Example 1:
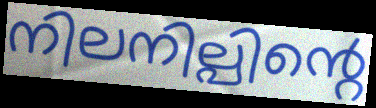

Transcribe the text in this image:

നിലനില്പിന്റെ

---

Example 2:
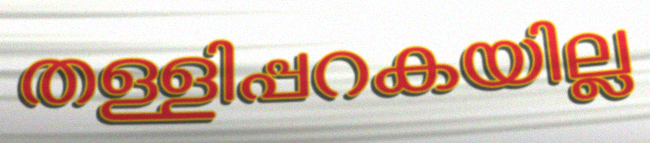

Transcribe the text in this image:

തള്ളിപ്പറകയില്ല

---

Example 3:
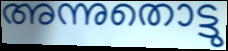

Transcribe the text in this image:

അന്നുതൊട്ടു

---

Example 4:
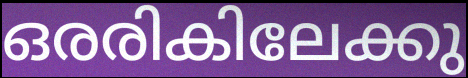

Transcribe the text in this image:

ഒരരികിലേക്കു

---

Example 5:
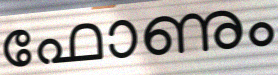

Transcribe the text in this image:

ഫോണും